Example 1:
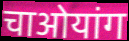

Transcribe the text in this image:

चाओयांग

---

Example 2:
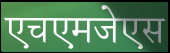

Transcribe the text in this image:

एचएमजेएस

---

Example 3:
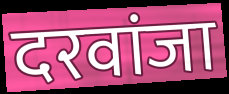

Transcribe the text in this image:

दरवांजा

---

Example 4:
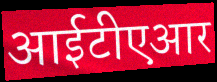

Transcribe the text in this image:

आईटीएआर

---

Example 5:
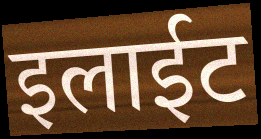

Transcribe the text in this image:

इलाईट